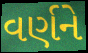
વર્ણને